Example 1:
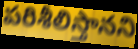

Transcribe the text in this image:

పరిశీలిస్తానని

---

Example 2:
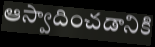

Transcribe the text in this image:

ఆస్వాదించడానికి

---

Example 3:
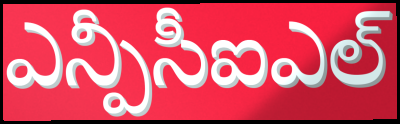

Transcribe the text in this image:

ఎన్పీసీఐఎల్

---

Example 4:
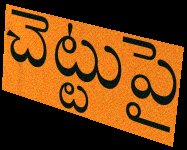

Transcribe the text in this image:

చెట్టుపై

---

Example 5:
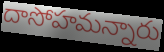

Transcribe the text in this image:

దాసోహమన్నారు